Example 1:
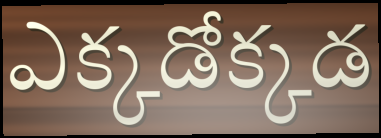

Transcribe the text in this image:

ఎక్కడోక్కడ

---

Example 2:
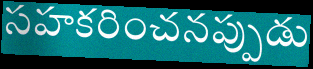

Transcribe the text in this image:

సహకరించనప్పుడు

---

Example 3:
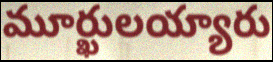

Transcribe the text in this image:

మూర్ఖులయ్యారు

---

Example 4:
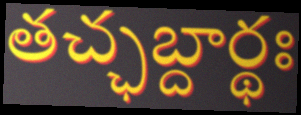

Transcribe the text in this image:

తచ్ఛబ్దార్థః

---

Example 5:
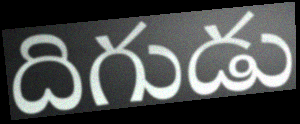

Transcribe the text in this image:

దిగుడు